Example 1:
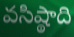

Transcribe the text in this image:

వసిష్ఠాది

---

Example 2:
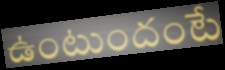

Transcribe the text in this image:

ఉంటుందంటే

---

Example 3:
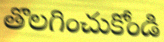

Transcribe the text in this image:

తొలగించుకోండి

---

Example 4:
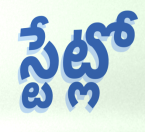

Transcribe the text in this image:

స్టేట్లో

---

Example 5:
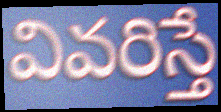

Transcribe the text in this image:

వివరిస్తే